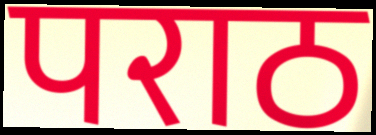
पराठ